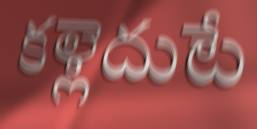
కళ్లెదుటే